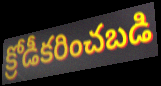
క్రోడీకరించబడి